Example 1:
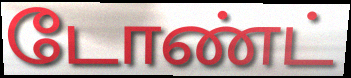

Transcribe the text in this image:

டோண்ட்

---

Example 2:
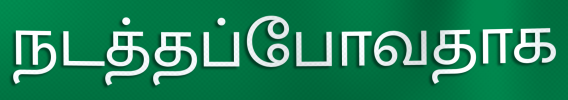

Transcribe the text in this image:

நடத்தப்போவதாக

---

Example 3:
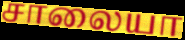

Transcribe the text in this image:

சாலையா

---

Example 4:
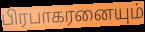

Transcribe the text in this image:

பிரபாகரனையும்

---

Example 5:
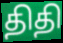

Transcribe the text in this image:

திதி